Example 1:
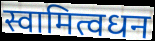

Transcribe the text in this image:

स्वामित्वधन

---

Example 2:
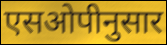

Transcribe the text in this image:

एसओपीनुसार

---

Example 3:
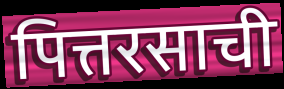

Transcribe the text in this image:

पित्तरसाची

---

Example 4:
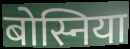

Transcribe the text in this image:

बोस्निया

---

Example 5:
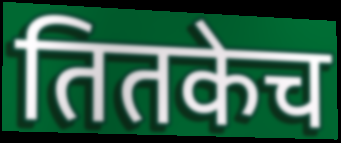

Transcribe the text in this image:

तितकेच